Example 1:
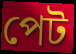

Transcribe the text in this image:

পেট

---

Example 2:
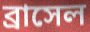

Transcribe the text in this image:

ব্রাসেল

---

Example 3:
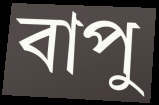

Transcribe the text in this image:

বাপু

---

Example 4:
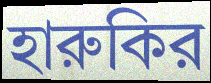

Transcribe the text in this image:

হারুকির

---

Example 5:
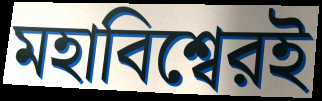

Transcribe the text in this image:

মহাবিশ্বেরই